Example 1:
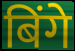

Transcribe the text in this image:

बिंगे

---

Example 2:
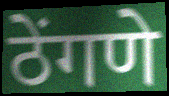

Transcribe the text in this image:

ठेंगणे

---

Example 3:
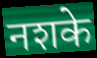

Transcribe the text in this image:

नशके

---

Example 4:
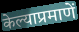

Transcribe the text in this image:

केल्याप्रमाणें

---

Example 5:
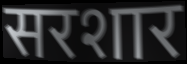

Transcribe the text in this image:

सरशार